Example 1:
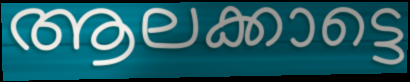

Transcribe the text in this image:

ആലക്കാട്ടെ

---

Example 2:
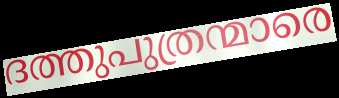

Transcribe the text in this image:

ദത്തുപുത്രന്മാരെ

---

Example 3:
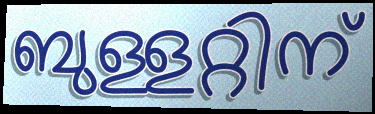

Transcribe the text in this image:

ബുള്ളറ്റിന്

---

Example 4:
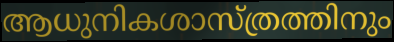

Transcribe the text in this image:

ആധുനികശാസ്ത്രത്തിനും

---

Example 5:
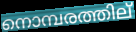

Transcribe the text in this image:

നൊമ്പരത്തില്